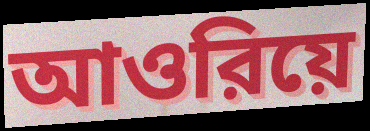
আওরিয়ে